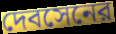
দেবসেনের